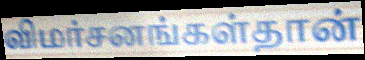
விமர்சனங்கள்தான்